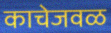
काचेजवळ